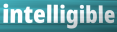
intelligible